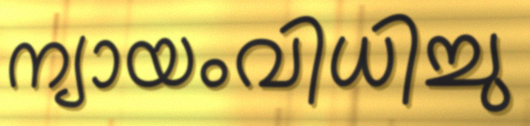
ന്യായംവിധിച്ചു